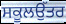
ਸਕੂਲਉੱਤਰ